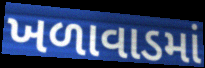
ખળાવાડમાં